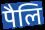
पैलि